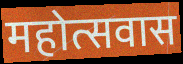
महोत्सवास